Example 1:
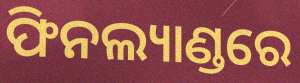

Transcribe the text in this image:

ଫିନଲ୍ୟାଣ୍ଡରେ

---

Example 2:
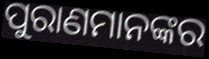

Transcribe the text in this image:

ପୁରାଣମାନଙ୍କର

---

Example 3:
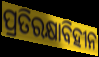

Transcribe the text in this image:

ପ୍ରତିରକ୍ଷାବିହୀନ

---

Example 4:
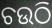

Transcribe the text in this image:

ଚଉଠି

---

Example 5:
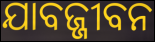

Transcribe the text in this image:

ଯାବଜ୍ଜୀବନ